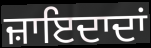
ਜ਼ਾਇਦਾਦਾਂ